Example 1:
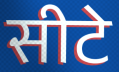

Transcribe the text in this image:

सीटे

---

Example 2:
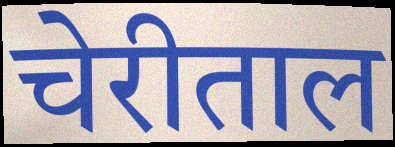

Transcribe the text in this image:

चेरीताल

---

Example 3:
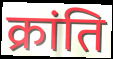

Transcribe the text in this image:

क्रांति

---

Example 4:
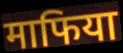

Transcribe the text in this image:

माफिया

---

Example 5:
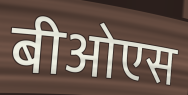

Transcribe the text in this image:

बीओएस